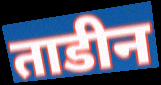
ताडीन